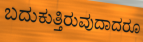
ಬದುಕುತ್ತಿರುವುದಾದರೂ